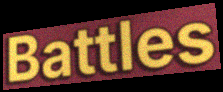
Battles